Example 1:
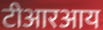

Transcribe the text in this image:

टीआरआय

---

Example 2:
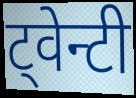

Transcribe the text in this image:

ट्वेन्टी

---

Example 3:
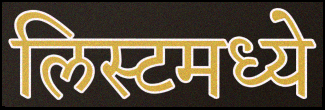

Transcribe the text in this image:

लिस्टमध्ये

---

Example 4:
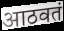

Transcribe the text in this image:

आठवतं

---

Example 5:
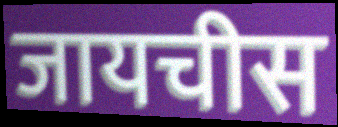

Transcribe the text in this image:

जायचीस